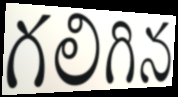
గలిగిన